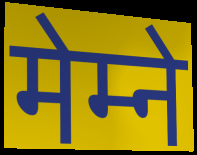
मेम्ने